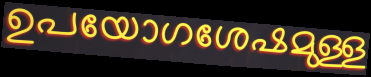
ഉപയോഗശേഷമുള്ള